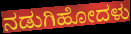
ನಡುಗಿಹೋದಳು